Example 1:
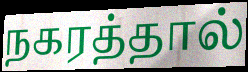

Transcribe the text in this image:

நகரத்தால்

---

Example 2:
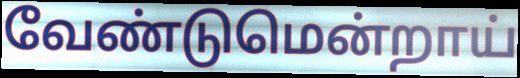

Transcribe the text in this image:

வேண்டுமென்றாய்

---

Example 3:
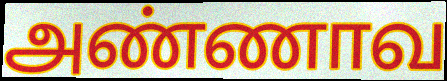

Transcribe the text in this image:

அண்ணாவ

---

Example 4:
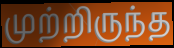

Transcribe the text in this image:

முற்றிருந்த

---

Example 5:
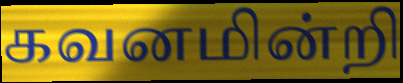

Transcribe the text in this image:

கவனமின்றி